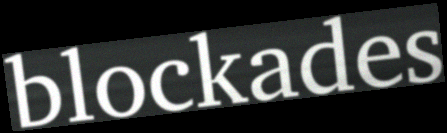
blockades